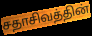
சதாசிவத்தின்